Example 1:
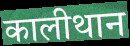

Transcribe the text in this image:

कालीथान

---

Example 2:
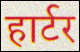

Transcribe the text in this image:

हार्टर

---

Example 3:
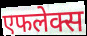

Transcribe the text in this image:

एफलेक्स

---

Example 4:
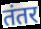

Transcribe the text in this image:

तंतर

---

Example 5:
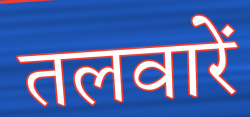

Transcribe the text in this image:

तलवारें